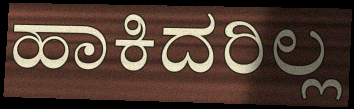
ಹಾಕಿದರಿಲ್ಲ